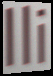
Ili